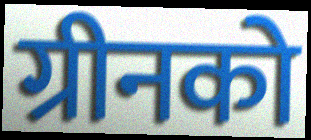
ग्रीनको